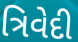
ત્રિવેદી